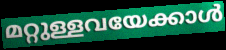
മറ്റുള്ളവയേക്കാൾ